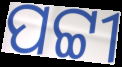
ପଟ୍ଟୀ